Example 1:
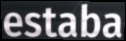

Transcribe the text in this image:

estaba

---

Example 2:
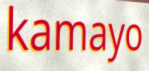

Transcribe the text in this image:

kamayo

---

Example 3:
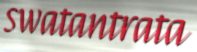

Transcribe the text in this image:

swatantrata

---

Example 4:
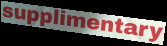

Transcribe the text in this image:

supplimentary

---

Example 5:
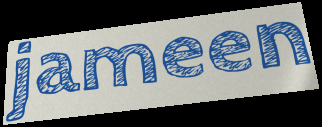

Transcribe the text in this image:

jameen